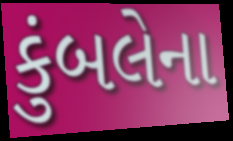
કુંબલેના